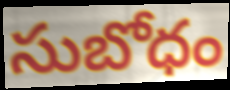
సుబోధం